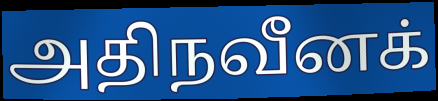
அதிநவீனக்